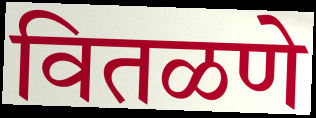
वितळणे